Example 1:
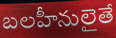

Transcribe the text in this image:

బలహీనులైతే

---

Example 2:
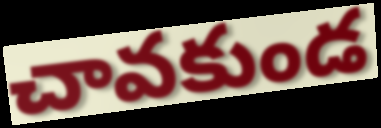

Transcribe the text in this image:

చావకుండ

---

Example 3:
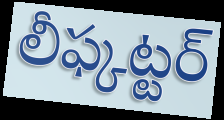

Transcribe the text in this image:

లీఫ్కట్టర్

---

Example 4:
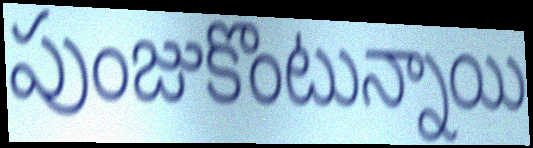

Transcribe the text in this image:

పుంజుకొంటున్నాయి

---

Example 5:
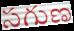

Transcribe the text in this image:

సగుణ